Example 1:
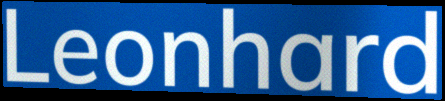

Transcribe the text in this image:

Leonhard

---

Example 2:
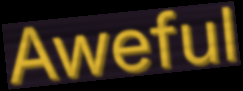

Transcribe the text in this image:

Aweful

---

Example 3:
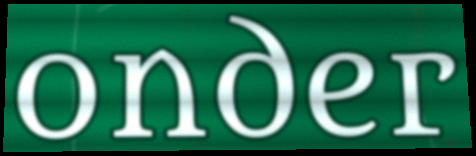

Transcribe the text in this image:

onder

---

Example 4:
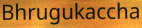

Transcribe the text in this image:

Bhrugukaccha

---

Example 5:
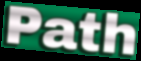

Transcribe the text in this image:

Path